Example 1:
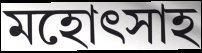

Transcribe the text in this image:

মহোৎসাহ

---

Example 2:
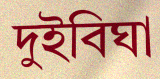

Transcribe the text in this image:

দুইবিঘা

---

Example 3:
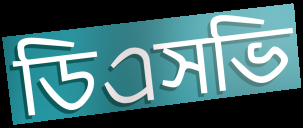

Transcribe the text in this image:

ডিএসভি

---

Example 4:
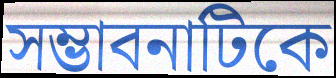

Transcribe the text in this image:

সম্ভাবনাটিকে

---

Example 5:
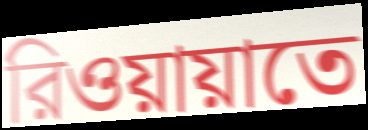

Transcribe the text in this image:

রিওয়ায়াতে